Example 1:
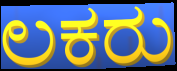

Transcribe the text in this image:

ಲಕರು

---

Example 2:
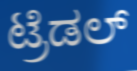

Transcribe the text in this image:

ಟ್ರೆಡಲ್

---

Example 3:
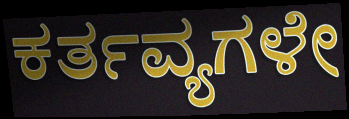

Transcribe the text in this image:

ಕರ್ತವ್ಯಗಳೇ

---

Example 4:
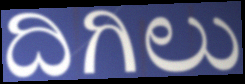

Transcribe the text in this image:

ದಿಗಿಲು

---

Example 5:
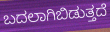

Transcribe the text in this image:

ಬದಲಾಗಿಬಿಡುತ್ತದೆ